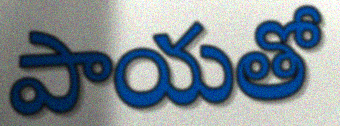
పాయతో